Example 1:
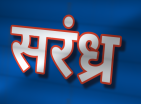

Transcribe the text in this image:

सरंध्र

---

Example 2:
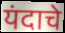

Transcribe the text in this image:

यंदाचे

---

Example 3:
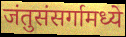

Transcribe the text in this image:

जंतुसंसर्गामध्ये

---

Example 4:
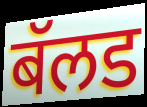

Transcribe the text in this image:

बॅलड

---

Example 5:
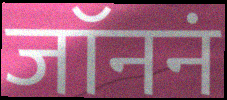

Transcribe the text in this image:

जॉननं